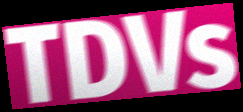
TDVs